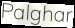
Palghar